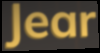
Jear